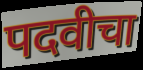
पदवीचा